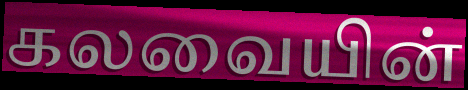
கலவையின்